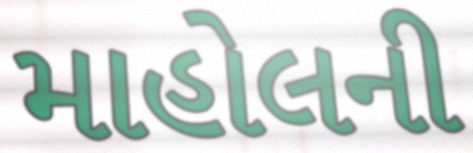
માહોલની